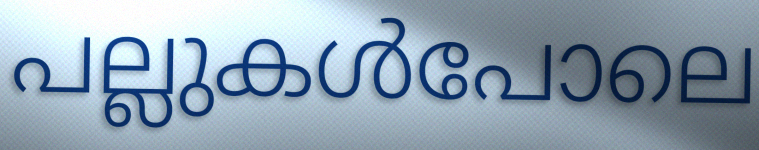
പല്ലുകൾപോലെ